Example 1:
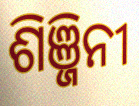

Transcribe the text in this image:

ଶିଞ୍ଜିନୀ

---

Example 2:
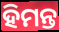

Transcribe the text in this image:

ହିମନ୍ତ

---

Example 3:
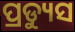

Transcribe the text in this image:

ପ୍ରଡ୍ୟୁସ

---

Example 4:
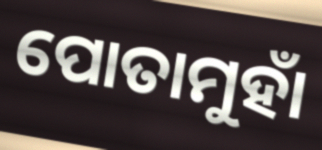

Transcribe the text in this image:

ପୋତାମୁହାଁ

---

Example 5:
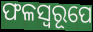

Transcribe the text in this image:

ଫଳସ୍ୱରୂପେ